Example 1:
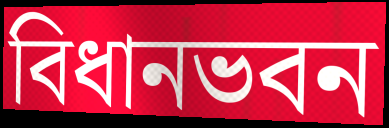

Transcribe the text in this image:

বিধানভবন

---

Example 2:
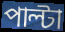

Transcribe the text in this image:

পাল্টা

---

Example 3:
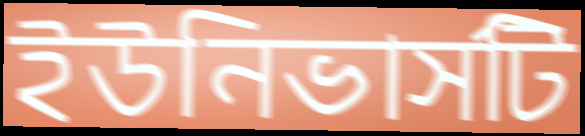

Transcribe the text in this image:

ইউনিভার্সটি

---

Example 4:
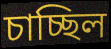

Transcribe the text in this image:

চাচ্ছিল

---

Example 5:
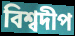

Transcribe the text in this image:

বিশ্বদীপ